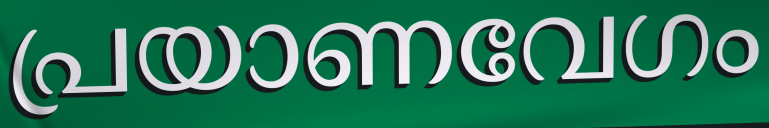
പ്രയാണവേഗം